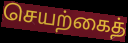
செயற்கைத்